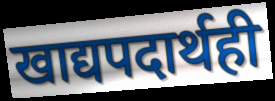
खाद्यपदार्थही